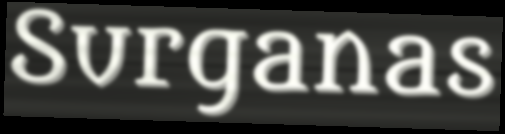
Surganas